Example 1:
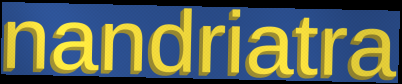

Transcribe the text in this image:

nandriatra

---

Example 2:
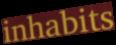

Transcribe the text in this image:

inhabits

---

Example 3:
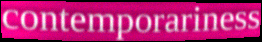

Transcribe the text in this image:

contemporariness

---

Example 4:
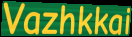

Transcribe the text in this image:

Vazhkkai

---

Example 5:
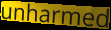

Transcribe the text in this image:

unharmed